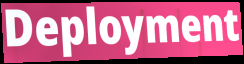
Deployment